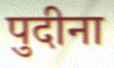
पुदीना